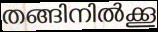
തങ്ങിനിൽക്കൂ